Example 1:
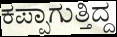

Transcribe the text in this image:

ಕಪ್ಪಾಗುತ್ತಿದ್ದ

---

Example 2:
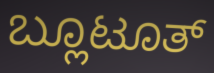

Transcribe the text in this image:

ಬ್ಲೂಟೂತ್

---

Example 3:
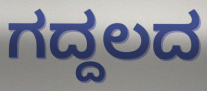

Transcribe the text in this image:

ಗದ್ದಲದ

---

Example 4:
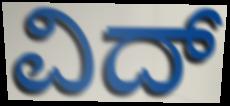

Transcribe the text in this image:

ವಿದ್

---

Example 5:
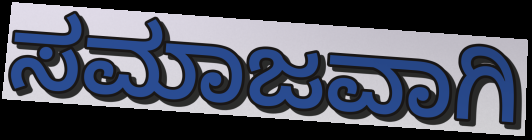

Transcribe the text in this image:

ಸಮಾಜವಾಗಿ